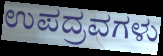
ಉಪದ್ರವಗಳು